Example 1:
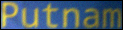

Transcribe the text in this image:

Putnam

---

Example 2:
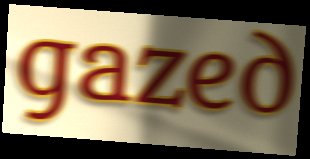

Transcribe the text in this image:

gazed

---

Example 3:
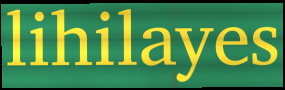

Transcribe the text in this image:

lihilayes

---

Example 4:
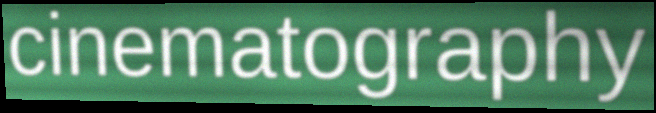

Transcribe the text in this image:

cinematography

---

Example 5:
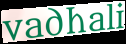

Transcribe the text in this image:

vadhali